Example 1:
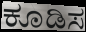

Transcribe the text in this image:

ಕೂಡಿಸ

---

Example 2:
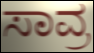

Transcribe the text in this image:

ಸಾವ್ರ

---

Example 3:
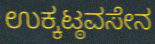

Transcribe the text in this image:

ಉಕ್ಕಟ್ಠವಸೇನ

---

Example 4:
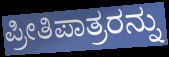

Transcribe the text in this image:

ಪ್ರೀತಿಪಾತ್ರರನ್ನು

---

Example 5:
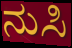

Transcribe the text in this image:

ನುಸಿ